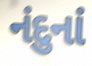
નંદુનાં